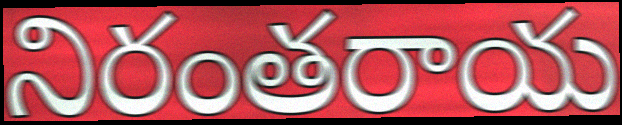
నిరంతరాయ